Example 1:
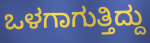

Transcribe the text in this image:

ಒಳಗಾಗುತ್ತಿದ್ದು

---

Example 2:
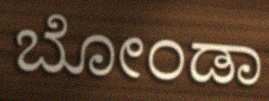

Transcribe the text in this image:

ಬೋಂಡಾ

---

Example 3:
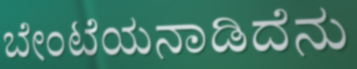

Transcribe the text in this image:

ಬೇಂಟೆಯನಾಡಿದೆನು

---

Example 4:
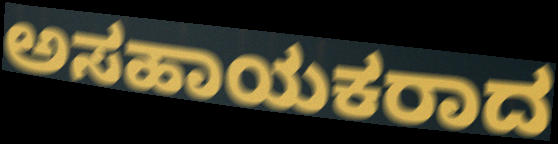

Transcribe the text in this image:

ಅಸಹಾಯಕರಾದ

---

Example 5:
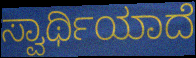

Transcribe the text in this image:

ಸ್ವಾರ್ಥಿಯಾದೆ